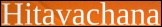
Hitavachana